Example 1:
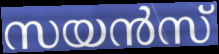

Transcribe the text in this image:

സയൻസ്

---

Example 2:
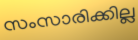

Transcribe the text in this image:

സംസാരിക്കില്ല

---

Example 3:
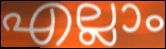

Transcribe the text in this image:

എല്ലാം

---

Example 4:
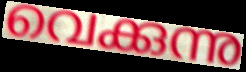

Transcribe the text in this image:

വെക്കുന്നു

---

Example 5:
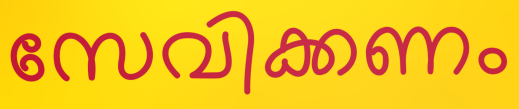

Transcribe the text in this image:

സേവിക്കണം